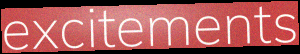
excitements